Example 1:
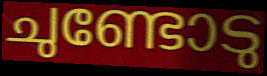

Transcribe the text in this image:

ചുണ്ടോടു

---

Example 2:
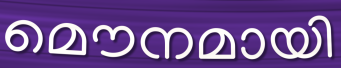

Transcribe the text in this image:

മൌനമായി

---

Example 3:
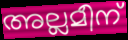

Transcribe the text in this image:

അല്ലമീന്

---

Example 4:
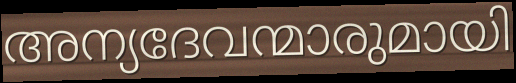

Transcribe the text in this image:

അന്യദേവന്മാരുമായി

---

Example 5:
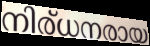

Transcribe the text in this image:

നിര്ധനരായ